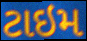
ટાઇમ